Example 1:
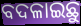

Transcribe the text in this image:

ବଦଳାଇଛୁ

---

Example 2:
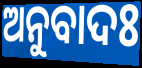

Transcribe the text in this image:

ଅନୁବାଦଃ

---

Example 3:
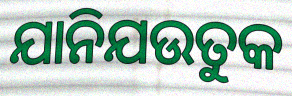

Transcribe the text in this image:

ଯାନିଯଉତୁକ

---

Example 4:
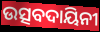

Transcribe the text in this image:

ଉତ୍ସବଦାୟିନୀ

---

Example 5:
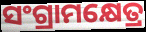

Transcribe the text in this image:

ସଂଗ୍ରାମକ୍ଷେତ୍ର